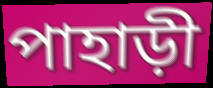
পাহাড়ী